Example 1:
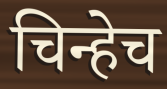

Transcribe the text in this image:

चिन्हेच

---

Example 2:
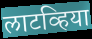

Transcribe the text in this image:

लाटव्हिया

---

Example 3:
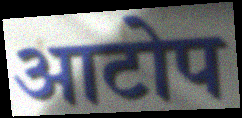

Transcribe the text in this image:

आटोप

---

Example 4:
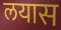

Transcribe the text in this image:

लयास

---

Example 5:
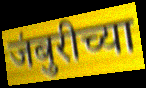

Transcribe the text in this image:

जंबुरीच्या